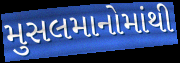
મુસલમાનોમાંથી